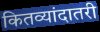
कितव्यांदातरी